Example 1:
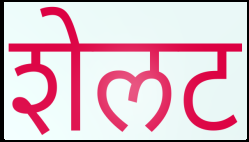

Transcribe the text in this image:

शेलट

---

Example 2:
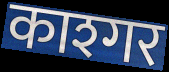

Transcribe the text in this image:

काश्गर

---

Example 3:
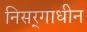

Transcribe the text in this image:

निसर्गाधीन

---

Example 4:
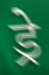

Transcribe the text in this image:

ड्रे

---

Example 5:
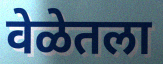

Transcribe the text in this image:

वेळेतला